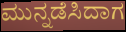
ಮುನ್ನಡೆಸಿದಾಗ